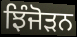
ਝਿੰਜੋੜਨ